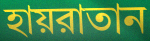
হায়রাতান